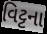
વિટ્ટના